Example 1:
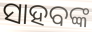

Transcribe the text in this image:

ସାହବଙ୍କ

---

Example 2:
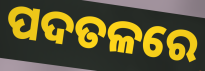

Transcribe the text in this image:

ପଦତଳରେ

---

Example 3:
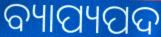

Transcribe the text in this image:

ବ୍ୟାପ୍ୟପଦ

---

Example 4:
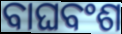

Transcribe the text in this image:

ବାଘବଂଶ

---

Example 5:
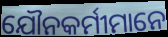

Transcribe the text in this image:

ଯୌନକର୍ମୀମାନେ